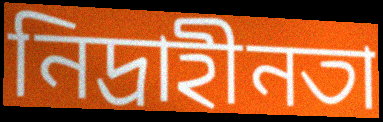
নিদ্রাহীনতা